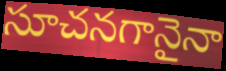
సూచనగానైనా